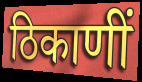
ठिकाणीं